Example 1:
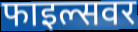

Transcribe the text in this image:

फाइल्सवर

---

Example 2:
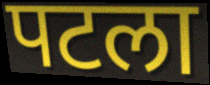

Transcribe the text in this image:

पटला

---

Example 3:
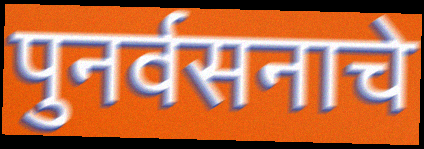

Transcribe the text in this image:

पुनर्वसनाचे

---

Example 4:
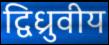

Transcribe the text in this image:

द्विध्रुवीय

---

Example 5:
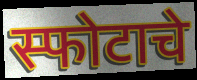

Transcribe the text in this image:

स्फोटाचे